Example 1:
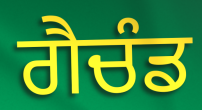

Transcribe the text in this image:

ਗੈਚੰਡ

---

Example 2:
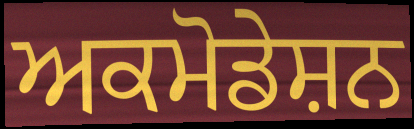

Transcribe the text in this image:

ਅਕਮੋਡੇਸ਼ਨ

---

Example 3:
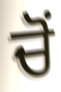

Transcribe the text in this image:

ਚੋਂ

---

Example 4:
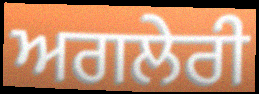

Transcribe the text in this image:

ਅਗਲੇਰੀ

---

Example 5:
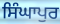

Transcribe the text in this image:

ਸਿੰਘਾਪੁਰ